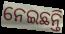
ନେଇଛନ୍ତି